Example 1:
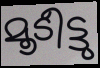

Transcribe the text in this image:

മൂടീട്ടു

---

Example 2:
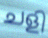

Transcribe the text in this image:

ചളി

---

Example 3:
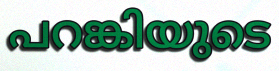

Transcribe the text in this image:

പറങ്കിയുടെ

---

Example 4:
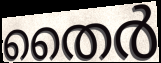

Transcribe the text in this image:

തൈർ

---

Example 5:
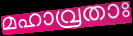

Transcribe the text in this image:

മഹാവ്രതാഃ